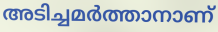
അടിച്ചമർത്താനാണ്